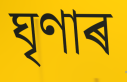
ঘৃণাৰ